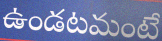
ఉండటమంటే